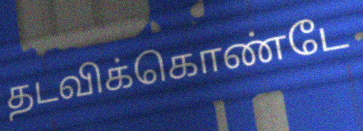
தடவிக்கொண்டே